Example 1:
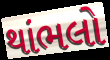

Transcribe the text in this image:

થાંભલો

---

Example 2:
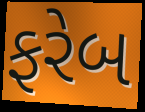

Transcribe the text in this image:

ફરેબ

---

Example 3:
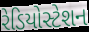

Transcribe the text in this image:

રેડિયોસ્ટેશન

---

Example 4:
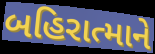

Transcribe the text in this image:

બહિરાત્માને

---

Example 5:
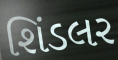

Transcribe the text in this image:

શિંડલર